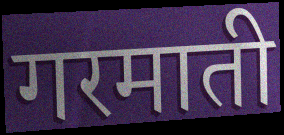
गरमाती